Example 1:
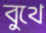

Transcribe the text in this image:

বুথে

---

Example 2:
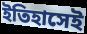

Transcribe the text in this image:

ইতিহাসেই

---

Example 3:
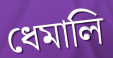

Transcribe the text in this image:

ধেমালি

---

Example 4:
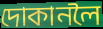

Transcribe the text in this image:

দোকানলৈ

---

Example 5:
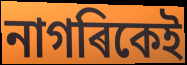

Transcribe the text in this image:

নাগৰিকেই